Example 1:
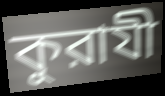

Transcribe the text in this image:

কুরাযী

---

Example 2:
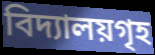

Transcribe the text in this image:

বিদ্যালয়গৃহ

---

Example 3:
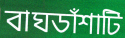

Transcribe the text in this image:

বাঘডাঁশাটি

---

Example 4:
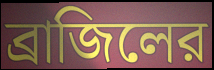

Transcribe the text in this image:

ব্রাজিলের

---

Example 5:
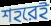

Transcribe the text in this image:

শহরেই